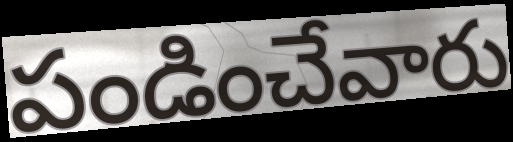
పండించేవారు